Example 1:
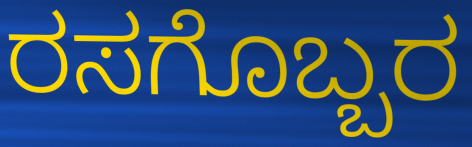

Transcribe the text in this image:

ರಸಗೊಬ್ಬರ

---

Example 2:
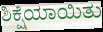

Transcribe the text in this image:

ಶಿಕ್ಷೆಯಾಯಿತು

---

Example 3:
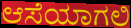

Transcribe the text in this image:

ಆಸೆಯಾಗಲಿ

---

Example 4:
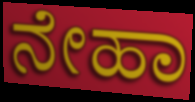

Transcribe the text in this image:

ನೇಹಾ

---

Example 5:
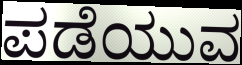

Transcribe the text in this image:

ಪಡೆಯುವ